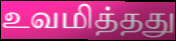
உவமித்தது